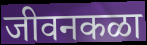
जीवनकळा